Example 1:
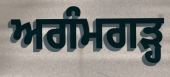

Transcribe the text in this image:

ਅਗੰਮਗੜ੍ਹ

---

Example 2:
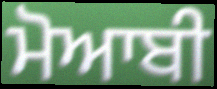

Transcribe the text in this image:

ਮੋਆਬੀ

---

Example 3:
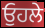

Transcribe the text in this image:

ਓੁਹਲੇ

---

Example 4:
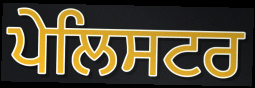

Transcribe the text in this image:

ਪੇਲਿਸਟਰ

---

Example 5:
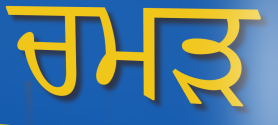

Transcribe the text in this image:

ਚਮੜ